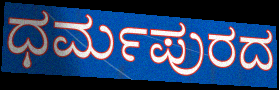
ಧರ್ಮಪುರದ